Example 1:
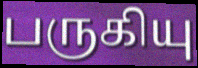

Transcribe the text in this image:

பருகியு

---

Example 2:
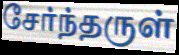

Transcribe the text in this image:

சேர்ந்தருள்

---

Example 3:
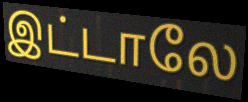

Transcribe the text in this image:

இட்டாலே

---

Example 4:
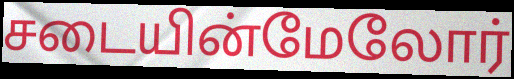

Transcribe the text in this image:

சடையின்மேலோர்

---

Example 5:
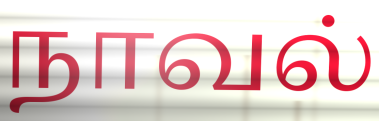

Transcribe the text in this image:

நாவல்